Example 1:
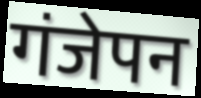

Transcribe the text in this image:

गंजेपन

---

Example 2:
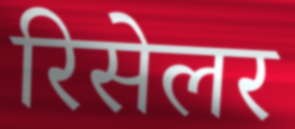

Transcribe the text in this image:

रिसेलर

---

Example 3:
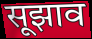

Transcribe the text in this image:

सूझाव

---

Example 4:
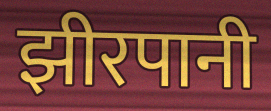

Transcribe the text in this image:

झीरपानी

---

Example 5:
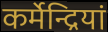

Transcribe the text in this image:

कर्मेन्द्रियां